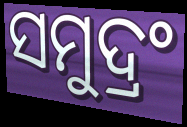
ସମୁଦ୍ରଂ